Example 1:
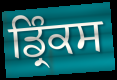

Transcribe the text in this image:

ਡ੍ਰਿੰਕਸ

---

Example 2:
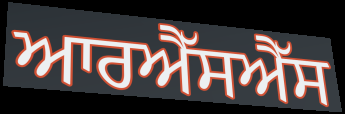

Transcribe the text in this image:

ਆਰਐੱਸਐੱਸ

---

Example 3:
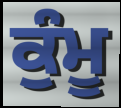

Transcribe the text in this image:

ਕੁੰਮੂ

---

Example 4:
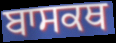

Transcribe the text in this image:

ਬਾਸਕਥ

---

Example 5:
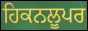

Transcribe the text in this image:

ਹਿਕਨਲੂਪਰ